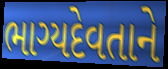
ભાગ્યદેવતાને